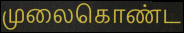
முலைகொண்ட